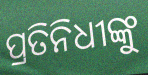
ପ୍ରତିନିଧୀଙ୍କୁ